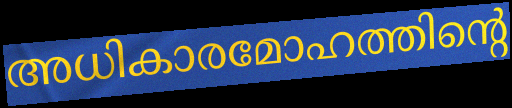
അധികാരമോഹത്തിന്റെ